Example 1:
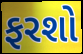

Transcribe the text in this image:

ફરશો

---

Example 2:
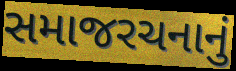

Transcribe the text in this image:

સમાજરચનાનું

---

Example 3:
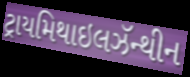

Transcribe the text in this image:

ટ્રાયમિથાઇલઝૅન્થીન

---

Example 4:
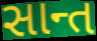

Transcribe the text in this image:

સાન્ત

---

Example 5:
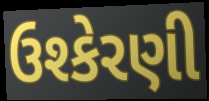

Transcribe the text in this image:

ઉશ્કેરણી